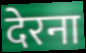
देरना